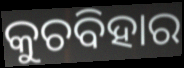
କୁଚବିହାର